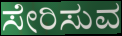
ಸೇರಿಸುವ